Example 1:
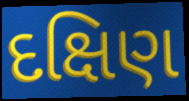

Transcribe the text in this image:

દક્ષિણ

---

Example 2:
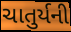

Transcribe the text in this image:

ચાતુર્યની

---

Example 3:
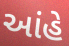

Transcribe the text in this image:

આંહે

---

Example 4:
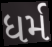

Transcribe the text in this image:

ધર્મ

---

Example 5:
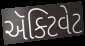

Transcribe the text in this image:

ઍક્ટિવેટ